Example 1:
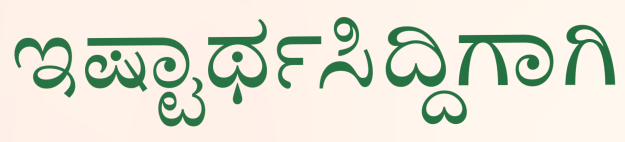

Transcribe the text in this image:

ಇಷ್ಟಾರ್ಥಸಿದ್ದಿಗಾಗಿ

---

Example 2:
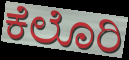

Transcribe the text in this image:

ಕೆಲೊರಿ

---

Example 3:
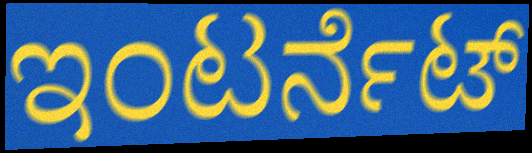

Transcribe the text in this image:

ಇಂಟರ್ನೆಟ್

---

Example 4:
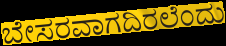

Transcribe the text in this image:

ಬೇಸರವಾಗದಿರಲೆಂದು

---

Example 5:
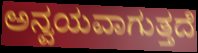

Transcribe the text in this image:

ಅನ್ವಯವಾಗುತ್ತದೆ